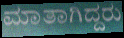
ಮಾತಾಗಿದ್ದರು